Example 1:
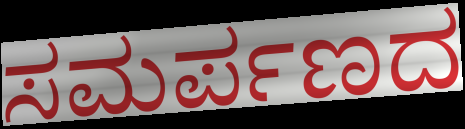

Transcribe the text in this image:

ಸಮರ್ಪಣದ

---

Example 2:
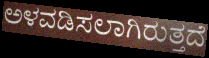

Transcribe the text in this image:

ಅಳವಡಿಸಲಾಗಿರುತ್ತದೆ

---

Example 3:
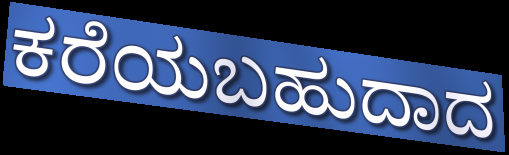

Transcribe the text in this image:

ಕರೆಯಬಹುದಾದ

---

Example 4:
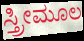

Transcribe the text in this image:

ಸ್ತ್ರೀಮೂಲ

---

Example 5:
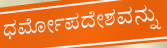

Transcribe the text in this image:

ಧರ್ಮೋಪದೇಶವನ್ನು